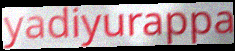
yadiyurappa